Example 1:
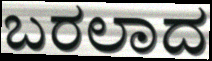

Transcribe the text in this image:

ಬರಲಾದ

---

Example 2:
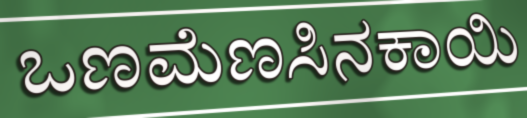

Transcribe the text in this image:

ಒಣಮೆಣಸಿನಕಾಯಿ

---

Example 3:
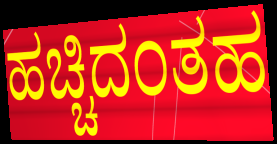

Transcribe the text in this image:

ಹಚ್ಚಿದಂತಹ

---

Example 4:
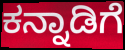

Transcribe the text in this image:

ಕನ್ನಾಡಿಗೆ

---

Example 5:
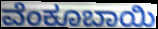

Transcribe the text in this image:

ವೆಂಕೂಬಾಯಿ